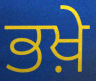
ਭਖ਼ੇ